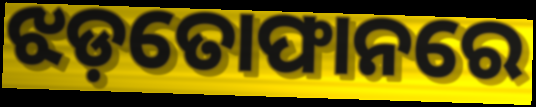
ଝଡ଼ତୋଫାନରେ